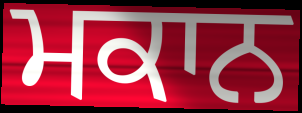
ਮਕਾਨ